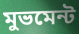
মুভমেন্ট